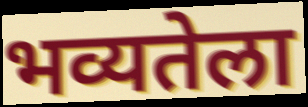
भव्यतेला